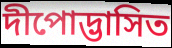
দীপোদ্ভাসিত